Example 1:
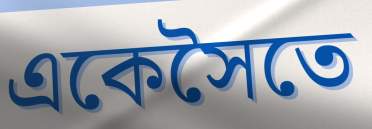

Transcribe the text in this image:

একেসৈতে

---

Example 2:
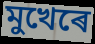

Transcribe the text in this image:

মুখেৰে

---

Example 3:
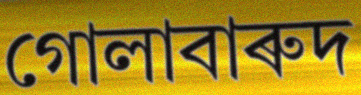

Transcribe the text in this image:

গোলাবাৰুদ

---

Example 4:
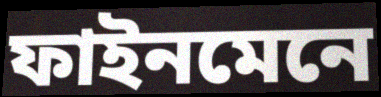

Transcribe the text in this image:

ফাইনমেনে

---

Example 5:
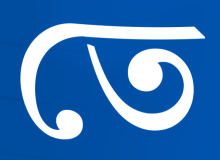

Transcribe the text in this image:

তে